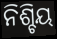
ନିଶ୍ଚିୟ